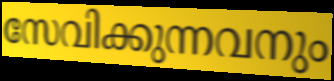
സേവിക്കുന്നവനും